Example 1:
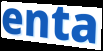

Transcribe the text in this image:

enta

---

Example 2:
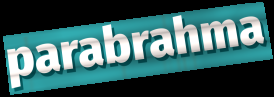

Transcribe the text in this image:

parabrahma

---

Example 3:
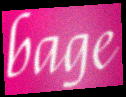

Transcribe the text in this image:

bage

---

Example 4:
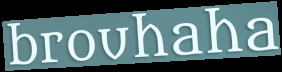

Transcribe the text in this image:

brouhaha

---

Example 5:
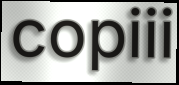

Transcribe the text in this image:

copiii